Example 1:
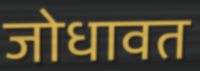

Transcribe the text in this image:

जोधावत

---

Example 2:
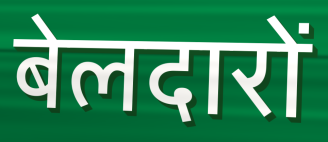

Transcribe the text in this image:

बेलदारों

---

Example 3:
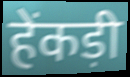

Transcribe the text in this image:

हेंकड़ी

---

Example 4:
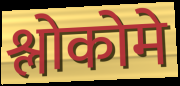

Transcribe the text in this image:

श्लोकोमे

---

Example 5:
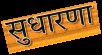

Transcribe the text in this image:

सुधारणा